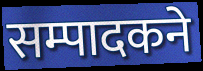
सम्पादकने